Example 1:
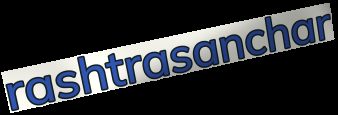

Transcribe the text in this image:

rashtrasanchar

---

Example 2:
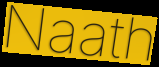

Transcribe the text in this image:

Naath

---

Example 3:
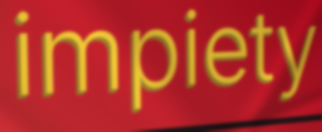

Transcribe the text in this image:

impiety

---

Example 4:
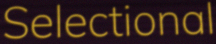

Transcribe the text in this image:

Selectional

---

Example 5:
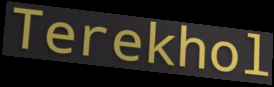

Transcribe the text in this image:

Terekhol